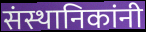
संस्थानिकांनी